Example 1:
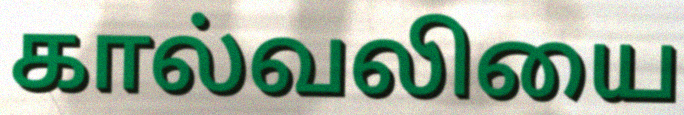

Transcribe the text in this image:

கால்வலியை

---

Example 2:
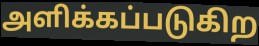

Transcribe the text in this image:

அளிக்கப்படுகிற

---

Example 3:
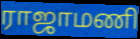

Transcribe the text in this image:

ராஜாமணி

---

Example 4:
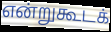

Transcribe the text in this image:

என்றுகூடக்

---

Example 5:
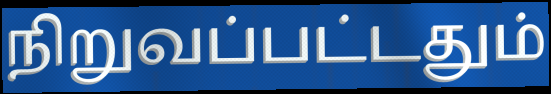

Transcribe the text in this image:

நிறுவப்பட்டதும்